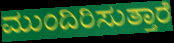
ಮುಂದಿರಿಸುತ್ತಾರೆ